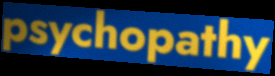
psychopathy